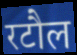
रटौल